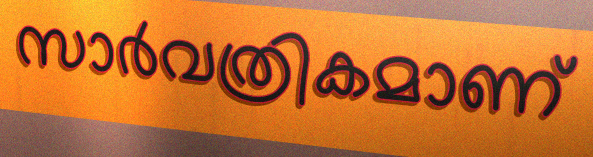
സാർവത്രികമാണ്